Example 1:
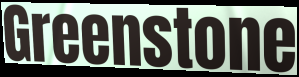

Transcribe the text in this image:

Greenstone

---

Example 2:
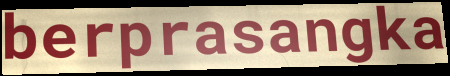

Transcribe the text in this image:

berprasangka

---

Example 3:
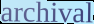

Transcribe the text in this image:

archival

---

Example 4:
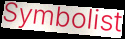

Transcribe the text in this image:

Symbolist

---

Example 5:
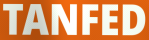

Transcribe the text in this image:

TANFED